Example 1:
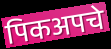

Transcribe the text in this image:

पिकअपचे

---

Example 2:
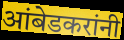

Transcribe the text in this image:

आंबेडकरांनी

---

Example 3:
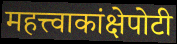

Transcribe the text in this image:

महत्त्वाकांक्षेपोटी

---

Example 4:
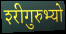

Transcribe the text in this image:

श्रीगुरुभ्यो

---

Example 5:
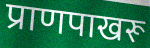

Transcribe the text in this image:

प्राणपाखरू